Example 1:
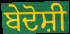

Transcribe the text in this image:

ਬੇਦੋਸ਼ੀ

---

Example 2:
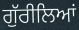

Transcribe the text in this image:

ਗੁੱਰੀਲਿਆਂ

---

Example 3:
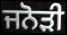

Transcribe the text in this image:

ਜਨੋੜੀ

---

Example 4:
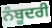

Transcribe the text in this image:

ਨੰਬੂਦਰੀ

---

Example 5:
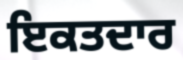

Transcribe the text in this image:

ਇਕਤਦਾਰ